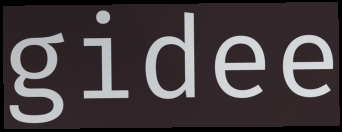
gidee